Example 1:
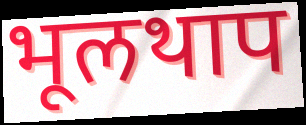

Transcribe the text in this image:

भूलथाप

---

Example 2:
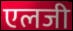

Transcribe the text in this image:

एलजी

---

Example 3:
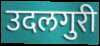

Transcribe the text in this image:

उदलगुरी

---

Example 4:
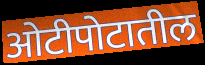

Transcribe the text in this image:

ओटीपोटातील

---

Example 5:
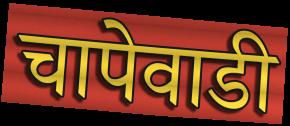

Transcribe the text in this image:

चापेवाडी